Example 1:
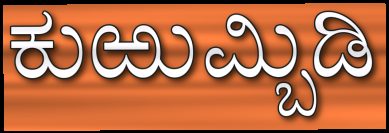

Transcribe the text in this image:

ಕುಱುಮ್ಬಿಡಿ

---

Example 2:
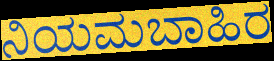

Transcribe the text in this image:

ನಿಯಮಬಾಹಿರ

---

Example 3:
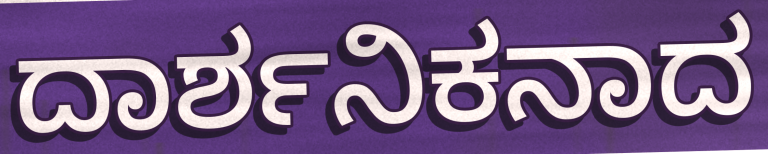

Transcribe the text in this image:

ದಾರ್ಶನಿಕನಾದ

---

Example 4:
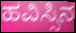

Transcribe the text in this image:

ಹವಿಸ್ಸಿನ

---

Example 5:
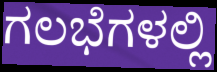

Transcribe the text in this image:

ಗಲಭೆಗಳಲ್ಲಿ